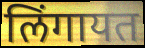
लिंगायत